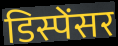
डिस्पेंसर